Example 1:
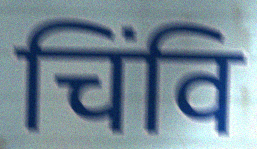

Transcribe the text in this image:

चिंवि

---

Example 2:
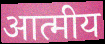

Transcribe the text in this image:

आत्मीय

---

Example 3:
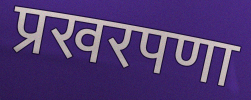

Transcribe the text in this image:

प्रखरपणा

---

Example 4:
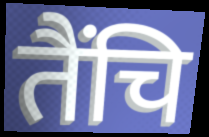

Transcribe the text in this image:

तैंचि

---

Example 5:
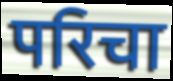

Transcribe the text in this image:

परिचा